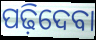
ପଢ଼ିଦେବା